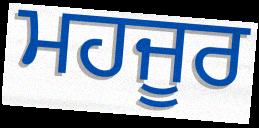
ਮਹਜੂਰ